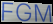
FGM